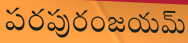
పరపురంజయమ్